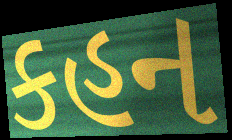
કહન